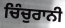
ਚਿੰਚੁਰਾਨੀ